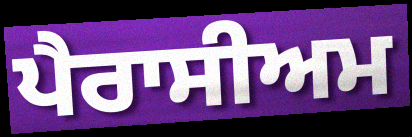
ਪੈਰਾਸੀਅਮ